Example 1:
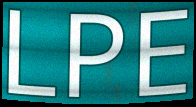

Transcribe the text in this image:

LPE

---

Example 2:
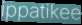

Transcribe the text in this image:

ippatikee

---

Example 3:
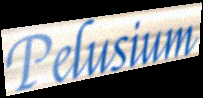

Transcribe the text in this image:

Pelusium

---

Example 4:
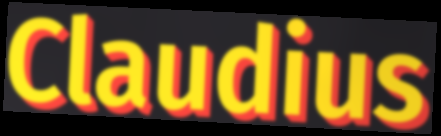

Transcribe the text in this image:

Claudius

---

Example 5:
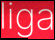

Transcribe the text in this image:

liga